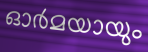
ഓർമയായും